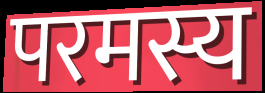
परमस्य